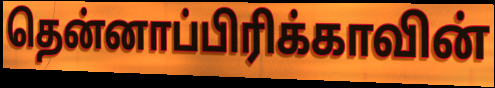
தென்னாப்பிரிக்காவின்